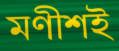
মণীশই